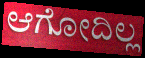
ಆಗೋದಿಲ್ಲ